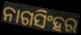
ନାଗସିଂହର